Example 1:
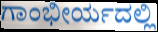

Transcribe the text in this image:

ಗಾಂಭೀರ್ಯದಲ್ಲಿ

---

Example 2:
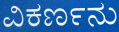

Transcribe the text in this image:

ವಿಕರ್ಣನು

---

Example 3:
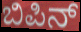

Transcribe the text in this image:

ಬಿಪಿನ್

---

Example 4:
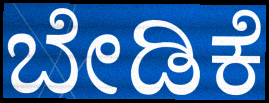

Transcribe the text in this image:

ಬೇಡಿಕೆ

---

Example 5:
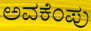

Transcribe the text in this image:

ಅವಕೆಂಪು